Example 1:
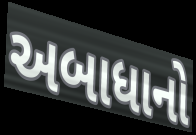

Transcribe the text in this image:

અબાધાનો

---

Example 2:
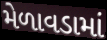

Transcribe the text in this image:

મેળાવડામાં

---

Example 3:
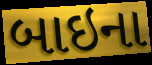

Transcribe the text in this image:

બાઇના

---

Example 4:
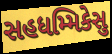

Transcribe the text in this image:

સહધમ્મિકેસુ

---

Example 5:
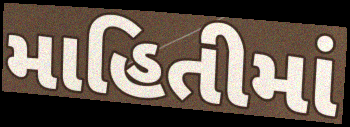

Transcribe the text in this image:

માહિતીમાં